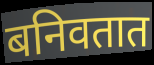
बनिवतात